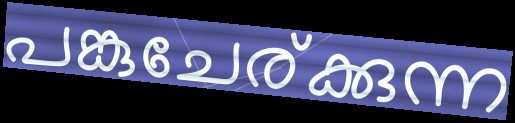
പങ്കുചേര്ക്കുന്ന